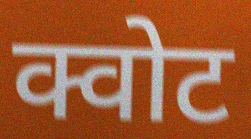
क्वोट